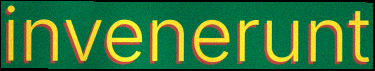
invenerunt